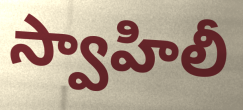
స్వాహిలీ